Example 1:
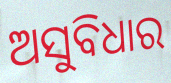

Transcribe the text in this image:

ଅସୁବିଧାର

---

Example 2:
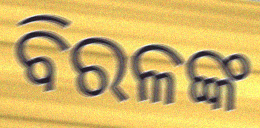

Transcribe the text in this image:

ବିରଳଙ୍କ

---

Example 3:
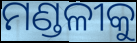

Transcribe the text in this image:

ମଣ୍ଡଳୀକୁ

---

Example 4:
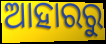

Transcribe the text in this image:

ଆହାରରୁ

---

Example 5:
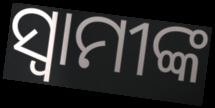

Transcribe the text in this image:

ସ୍ଵାମୀଙ୍କ